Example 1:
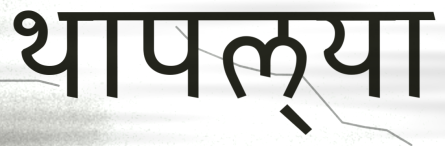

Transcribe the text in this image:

थापल्या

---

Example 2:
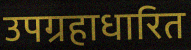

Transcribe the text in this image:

उपग्रहाधारित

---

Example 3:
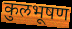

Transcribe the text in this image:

कुलभूषण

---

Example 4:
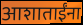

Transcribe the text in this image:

आशाताईंना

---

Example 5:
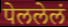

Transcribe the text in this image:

पेललेलं